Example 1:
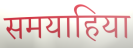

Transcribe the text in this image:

समयाहिया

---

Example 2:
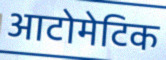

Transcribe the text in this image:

आटोमेटिक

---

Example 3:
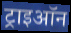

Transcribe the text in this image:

ट्राइऑन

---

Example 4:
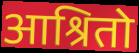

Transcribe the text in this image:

आश्रितो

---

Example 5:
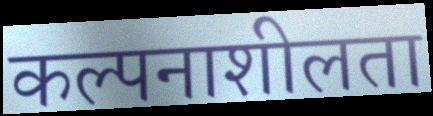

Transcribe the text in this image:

कल्पनाशीलता